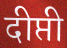
दीप्ती